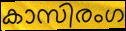
കാസിരംഗ